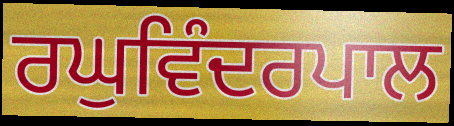
ਰਘੁਵਿੰਦਰਪਾਲ